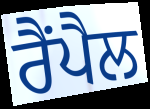
ਰੈਂਪੈਲ